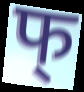
फ्